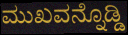
ಮುಖವನ್ನೊಡ್ಡಿ